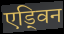
एड्विन